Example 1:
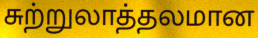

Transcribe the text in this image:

சுற்றுலாத்தலமான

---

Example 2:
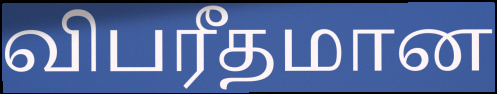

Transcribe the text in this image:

விபரீதமான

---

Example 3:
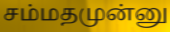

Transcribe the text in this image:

சம்மதமுன்னு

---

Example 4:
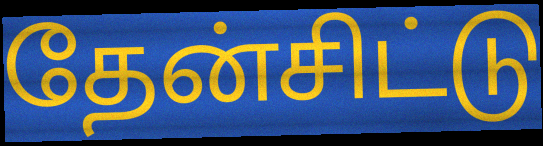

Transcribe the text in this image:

தேன்சிட்டு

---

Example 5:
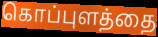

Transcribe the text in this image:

கொப்புளத்தை